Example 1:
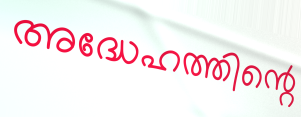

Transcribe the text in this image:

അദ്ധേഹത്തിന്റെ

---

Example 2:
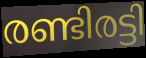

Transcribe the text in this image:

രണ്ടിരട്ടി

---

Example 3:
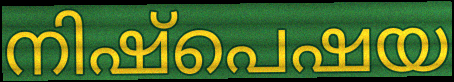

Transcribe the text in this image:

നിഷ്പെഷയ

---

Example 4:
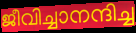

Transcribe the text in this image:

ജീവിച്ചാനന്ദിച്ച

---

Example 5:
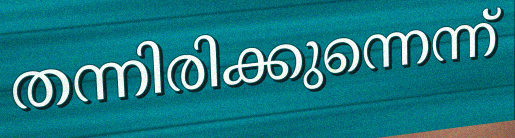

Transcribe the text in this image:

തന്നിരിക്കുന്നെന്ന്